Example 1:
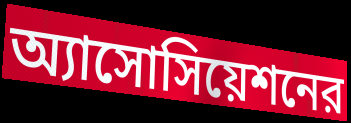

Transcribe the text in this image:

অ্যাসোসিয়েশনের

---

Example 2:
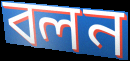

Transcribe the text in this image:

বলন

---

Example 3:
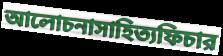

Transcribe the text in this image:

আলোচনাসাহিত্যফিচার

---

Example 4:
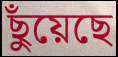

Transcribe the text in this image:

ছুঁয়েছে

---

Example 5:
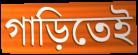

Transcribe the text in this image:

গাড়িতেই